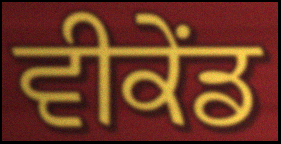
ਵੀਕੇਂਡ